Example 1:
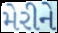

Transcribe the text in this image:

મેરીને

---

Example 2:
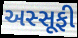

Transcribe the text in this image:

અસ્સૂફી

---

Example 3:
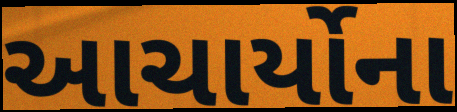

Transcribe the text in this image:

આચાર્યોના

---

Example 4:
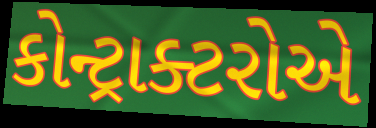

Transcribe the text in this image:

કોન્ટ્રાક્ટરોએ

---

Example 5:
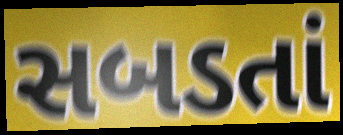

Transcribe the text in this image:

સબડતાં